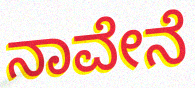
ನಾವೇನೆ